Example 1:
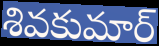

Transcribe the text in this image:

శివకుమార్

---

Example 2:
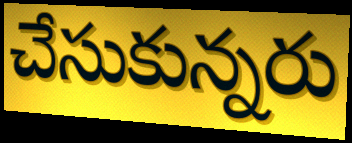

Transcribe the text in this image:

చేసుకున్నరు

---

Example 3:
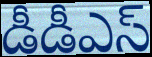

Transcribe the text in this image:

డీడీఎస్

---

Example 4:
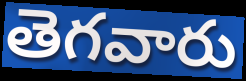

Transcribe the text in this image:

తెగవారు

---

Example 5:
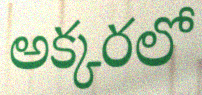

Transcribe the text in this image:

అక్కరలో